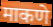
माकणे